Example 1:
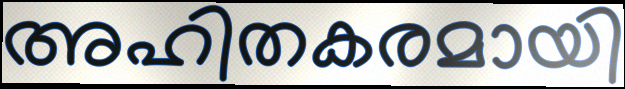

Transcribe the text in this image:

അഹിതകരമായി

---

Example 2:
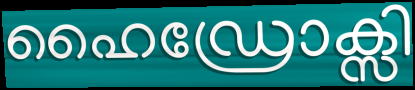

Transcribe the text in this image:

ഹൈഡ്രോക്സി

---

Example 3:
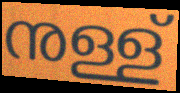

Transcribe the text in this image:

നുള്ള്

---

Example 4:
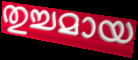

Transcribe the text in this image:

തുച്ചമായ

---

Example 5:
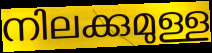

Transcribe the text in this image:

നിലക്കുമുള്ള